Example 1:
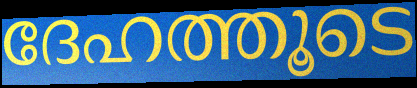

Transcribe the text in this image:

ദേഹത്തൂടെ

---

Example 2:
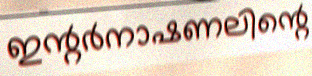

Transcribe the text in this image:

ഇന്റർനാഷണലിന്റെ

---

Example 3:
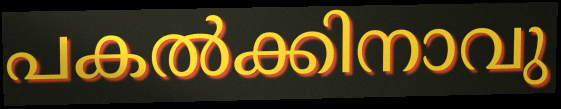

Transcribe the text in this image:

പകൽക്കിനാവു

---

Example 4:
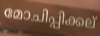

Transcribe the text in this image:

മോചിപ്പിക്കല്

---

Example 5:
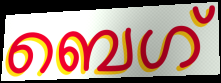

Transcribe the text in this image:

ബെഗ്